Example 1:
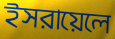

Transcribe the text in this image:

ইসরায়েলে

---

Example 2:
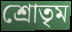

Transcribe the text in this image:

শ্রোতৃম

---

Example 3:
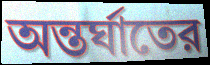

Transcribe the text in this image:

অন্তর্ঘাতের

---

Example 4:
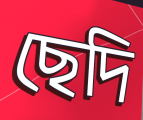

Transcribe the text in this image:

ছেদি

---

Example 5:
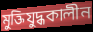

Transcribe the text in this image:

মুক্তিযুদ্ধকালীন